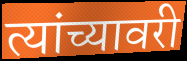
त्यांच्यावरी